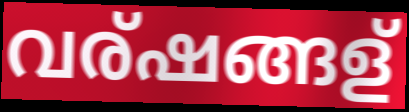
വര്ഷങ്ങള്